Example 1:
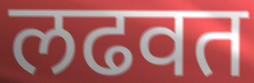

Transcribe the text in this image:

लढवत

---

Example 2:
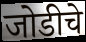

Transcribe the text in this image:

जोडीचे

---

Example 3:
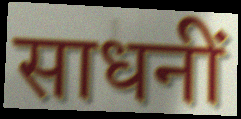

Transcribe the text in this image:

साधनीं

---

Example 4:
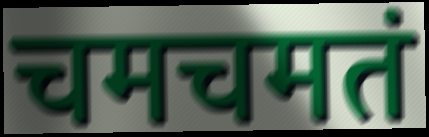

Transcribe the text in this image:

चमचमतं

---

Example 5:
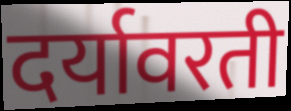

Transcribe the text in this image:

दर्यावरती